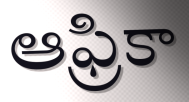
ఆఫ్రికా